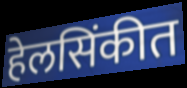
हेलसिंकीत